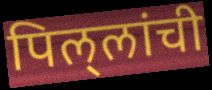
पिल्लांची